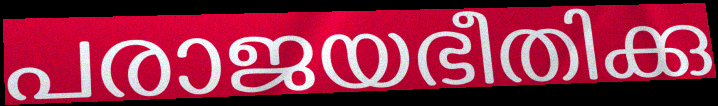
പരാജയഭീതിക്കു